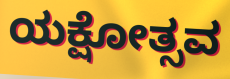
ಯಕ್ಷೋತ್ಸವ